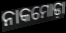
ନାକମୋଡ଼ା